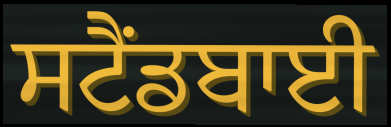
ਸਟੈਂਡਬਾਈ